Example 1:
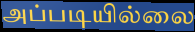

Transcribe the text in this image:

அப்படியில்லை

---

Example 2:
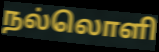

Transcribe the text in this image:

நல்லொளி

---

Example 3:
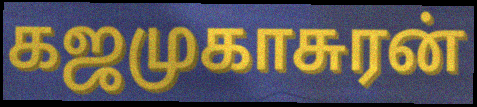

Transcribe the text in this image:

கஜமுகாசுரன்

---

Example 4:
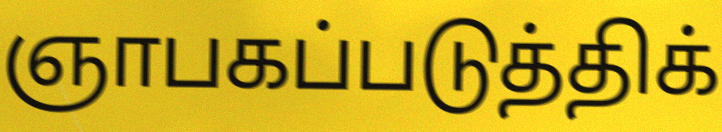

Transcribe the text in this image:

ஞாபகப்படுத்திக்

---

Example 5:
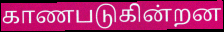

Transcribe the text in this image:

காணபடுகின்றன